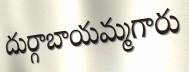
దుర్గాబాయమ్మగారు